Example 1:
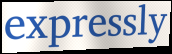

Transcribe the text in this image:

expressly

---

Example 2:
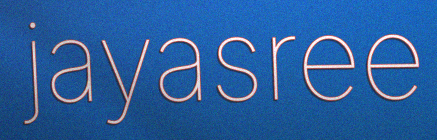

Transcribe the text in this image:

jayasree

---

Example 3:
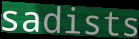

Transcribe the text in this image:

sadists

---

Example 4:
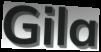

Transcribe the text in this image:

Gila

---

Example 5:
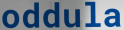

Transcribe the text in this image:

oddula